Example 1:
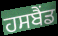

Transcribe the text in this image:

ਹਸਬੈਂਡ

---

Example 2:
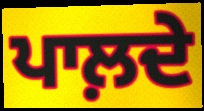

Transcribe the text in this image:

ਪਾਲ਼ਦੇ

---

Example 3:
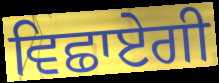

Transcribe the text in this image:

ਵਿਛਾਏਗੀ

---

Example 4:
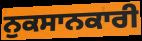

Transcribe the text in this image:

ਨੁਕਸਾਨਕਾਰੀ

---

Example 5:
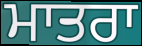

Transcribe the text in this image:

ਮਾਤਰਾ